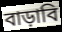
বাড়াবি